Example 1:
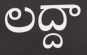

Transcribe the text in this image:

లద్దా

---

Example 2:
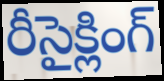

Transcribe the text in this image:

రీసైక్లింగ్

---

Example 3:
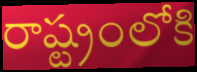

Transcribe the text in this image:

రాష్ట్రంలోకి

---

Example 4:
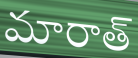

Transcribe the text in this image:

మారాత్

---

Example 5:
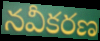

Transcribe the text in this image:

నవీకరణ